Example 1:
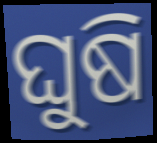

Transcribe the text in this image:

ଘୁଷି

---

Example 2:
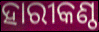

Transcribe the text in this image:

ହାରୀକଣ୍ଠ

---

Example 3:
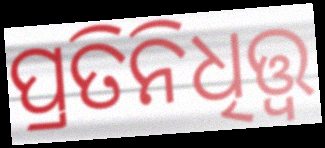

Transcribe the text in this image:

ପ୍ରତିନିଧିତ୍ତ୍ୱ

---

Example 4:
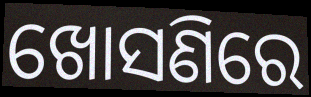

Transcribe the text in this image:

ଖୋସଣିରେ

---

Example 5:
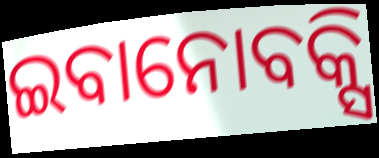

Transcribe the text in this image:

ଇବାନୋବକ୍ସି